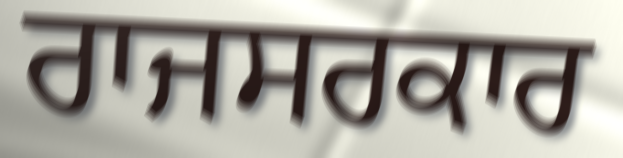
ਰਾਜਸਰਕਾਰ